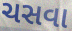
ચસવા